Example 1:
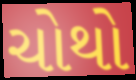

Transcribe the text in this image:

ચોથો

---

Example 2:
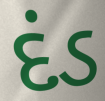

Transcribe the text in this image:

દંડ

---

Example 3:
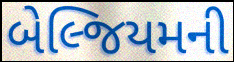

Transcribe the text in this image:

બેલ્જિયમની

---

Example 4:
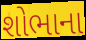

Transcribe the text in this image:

શોભાના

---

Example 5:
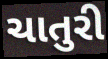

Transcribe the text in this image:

ચાતુરી